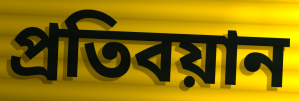
প্রতিবয়ান